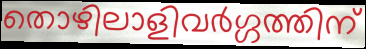
തൊഴിലാളിവർഗ്ഗത്തിന്